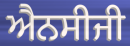
ਐਨਸੀਜੀ